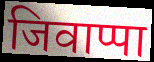
जिवाप्पा